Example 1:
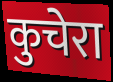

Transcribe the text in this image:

कुचेरा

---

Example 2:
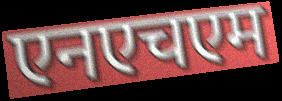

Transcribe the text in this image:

एनएचएम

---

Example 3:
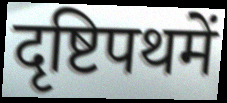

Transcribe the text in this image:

दृष्टिपथमें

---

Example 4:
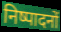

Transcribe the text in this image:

निष्पादनों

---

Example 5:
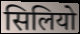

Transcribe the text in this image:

सिलियो